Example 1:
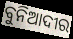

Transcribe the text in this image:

ବୁନିଆଦୀର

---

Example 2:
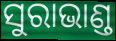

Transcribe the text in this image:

ସୁରାଭାଣ୍ଡ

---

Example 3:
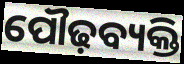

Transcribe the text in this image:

ପୌଢ଼ବ୍ୟକ୍ତି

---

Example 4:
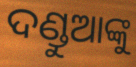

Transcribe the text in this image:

ଦଣ୍ଡୁଆଙ୍କୁ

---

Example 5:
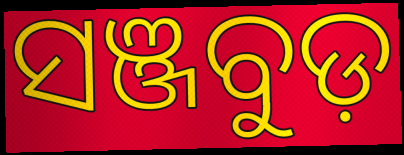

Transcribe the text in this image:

ସଞ୍ଜବୁଡ଼